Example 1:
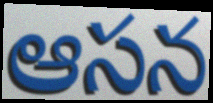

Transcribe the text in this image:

ఆసన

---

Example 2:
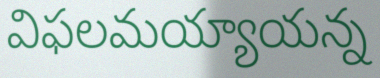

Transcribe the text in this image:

విఫలమయ్యాయన్న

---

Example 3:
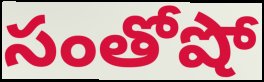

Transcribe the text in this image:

సంతోషో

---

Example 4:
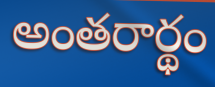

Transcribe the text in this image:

అంతరార్థం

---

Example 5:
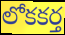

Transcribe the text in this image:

లోకకర్త